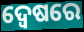
ଦ୍ୱେଷରେ